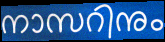
നാസറിനും